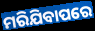
ମରିଯିବାପରେ